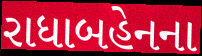
રાધાબહેનના